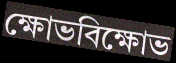
ক্ষোভবিক্ষোভ